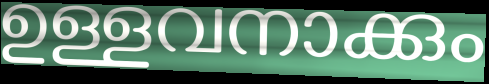
ഉള്ളവനാക്കും